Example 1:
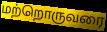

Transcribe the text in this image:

மற்றொருவரை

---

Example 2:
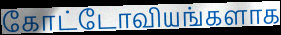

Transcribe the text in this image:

கோட்டோவியங்களாக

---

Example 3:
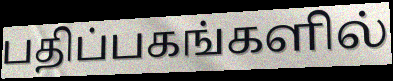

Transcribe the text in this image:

பதிப்பகங்களில்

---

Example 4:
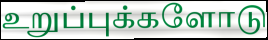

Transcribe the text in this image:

உறுப்புக்களோடு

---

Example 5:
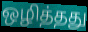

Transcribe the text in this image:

ஒழித்தது